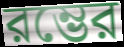
রম্ভের